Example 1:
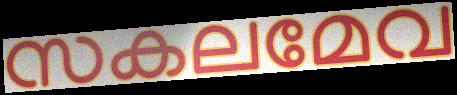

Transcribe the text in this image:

സകലമേവ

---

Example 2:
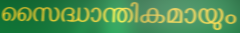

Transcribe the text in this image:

സൈദ്ധാന്തികമായും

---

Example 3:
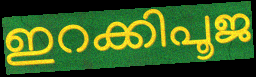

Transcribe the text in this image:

ഇറക്കിപൂജ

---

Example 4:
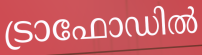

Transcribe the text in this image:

ട്രാഫോഡിൽ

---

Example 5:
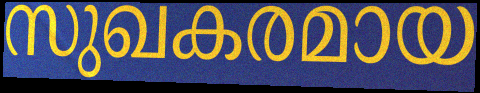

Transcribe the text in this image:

സുഖകരമായ